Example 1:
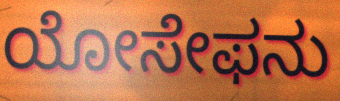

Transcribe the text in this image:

ಯೋಸೇಫನು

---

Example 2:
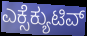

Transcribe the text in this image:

ಎಕ್ಸೆಕ್ಯುಟಿವ್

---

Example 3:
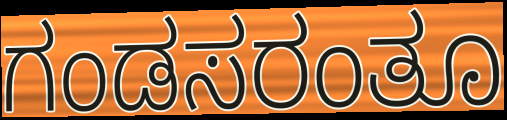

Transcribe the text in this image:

ಗಂಡಸರಂತೂ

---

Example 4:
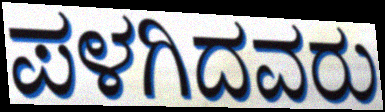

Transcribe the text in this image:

ಪಳಗಿದವರು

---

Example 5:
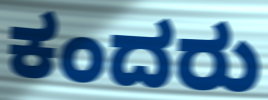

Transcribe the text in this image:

ಕಂದರು